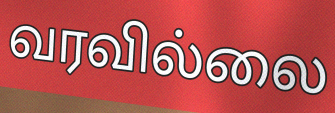
வரவில்லை